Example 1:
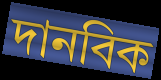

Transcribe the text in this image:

দানবিক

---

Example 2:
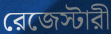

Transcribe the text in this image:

রেজেস্টারী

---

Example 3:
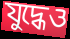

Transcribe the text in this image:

যুদ্ধেও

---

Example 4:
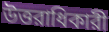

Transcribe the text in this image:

উত্তরাধিকারী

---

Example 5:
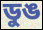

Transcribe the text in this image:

ডুঙ